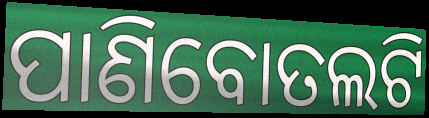
ପାଣିବୋତଲଟି